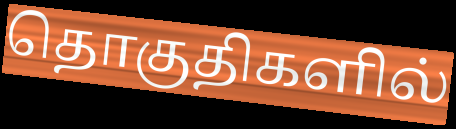
தொகுதிகளில்